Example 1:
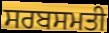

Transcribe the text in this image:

ਸਰਬਸਮਤੀ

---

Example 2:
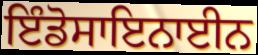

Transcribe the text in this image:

ਇੰਡੋਸਾਇਨਾਈਨ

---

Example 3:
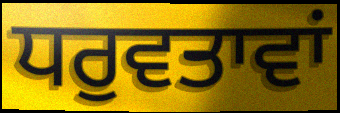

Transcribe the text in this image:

ਧਰੁਵਤਾਵਾਂ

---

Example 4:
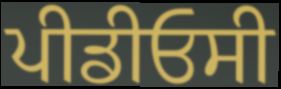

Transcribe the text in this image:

ਪੀਡੀਓਸੀ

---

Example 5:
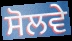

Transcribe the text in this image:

ਸੋਲਵੇ